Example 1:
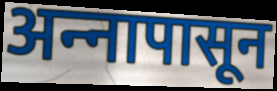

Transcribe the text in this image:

अन्नापासून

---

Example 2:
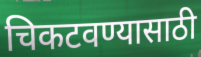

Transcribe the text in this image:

चिकटवण्यासाठी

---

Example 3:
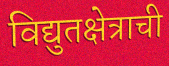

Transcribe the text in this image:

विद्युतक्षेत्राची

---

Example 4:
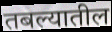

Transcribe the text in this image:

तबल्यातील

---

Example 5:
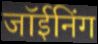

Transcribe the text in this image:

जॉईनिंग